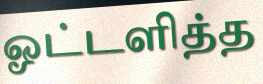
ஓட்டளித்த